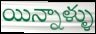
యిన్నాళ్ళు